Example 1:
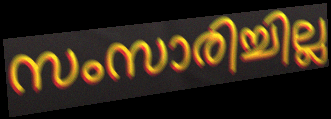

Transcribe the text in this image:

സംസാരിച്ചില്ല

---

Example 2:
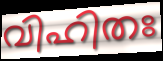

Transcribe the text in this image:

വിഹിതഃ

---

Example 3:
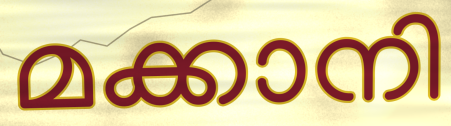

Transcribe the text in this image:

മക്കാനി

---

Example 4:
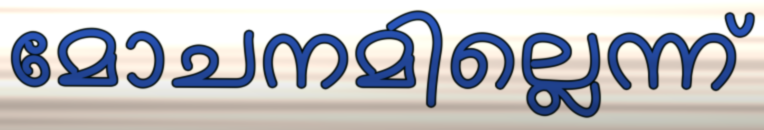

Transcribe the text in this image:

മോചനമില്ലെന്ന്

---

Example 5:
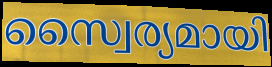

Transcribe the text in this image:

സ്വൈര്യമായി